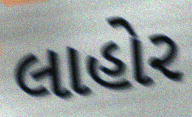
લાહોર